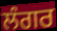
ਲੰਗਰ